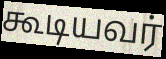
கூடியவர்